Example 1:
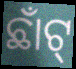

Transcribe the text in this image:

ଛାଁଟ୍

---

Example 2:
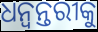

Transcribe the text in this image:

ଧନ୍ବନ୍ତରୀକୁ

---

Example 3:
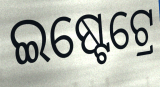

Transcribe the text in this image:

ଇଷ୍ଟେଟ୍ରେ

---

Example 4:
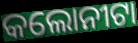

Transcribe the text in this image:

କଲୋନୀଟା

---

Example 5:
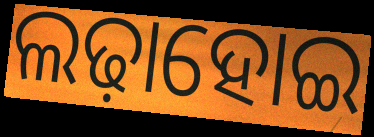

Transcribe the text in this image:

ଲଢ଼ାହୋଇ